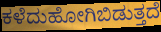
ಕಳೆದುಹೋಗಿಬಿಡುತ್ತದೆ